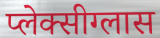
प्लेक्सीग्लास